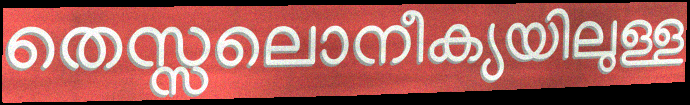
തെസ്സലൊനീക്യയിലുള്ള